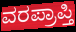
ವರಪ್ರಾಪ್ತಿ